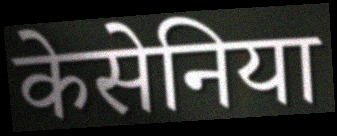
केसेनिया